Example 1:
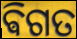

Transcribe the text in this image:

ଵିଗତ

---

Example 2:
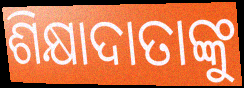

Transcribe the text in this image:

ଶିକ୍ଷାଦାତାଙ୍କୁ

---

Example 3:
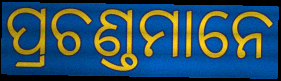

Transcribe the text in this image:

ପ୍ରଚଣ୍ଡମାନେ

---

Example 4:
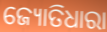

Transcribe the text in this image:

ଜ୍ଯୋତିଧାରା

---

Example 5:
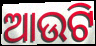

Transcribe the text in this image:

ଆଉଟି